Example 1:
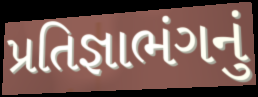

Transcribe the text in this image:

પ્રતિજ્ઞાભંગનું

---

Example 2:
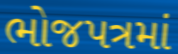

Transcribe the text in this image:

ભોજપત્રમાં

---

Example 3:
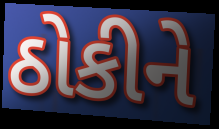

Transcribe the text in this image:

ઠોકીને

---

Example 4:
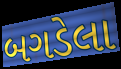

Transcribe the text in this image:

બગડેલા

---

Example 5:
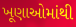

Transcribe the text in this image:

ખૂણાઓમાંથી